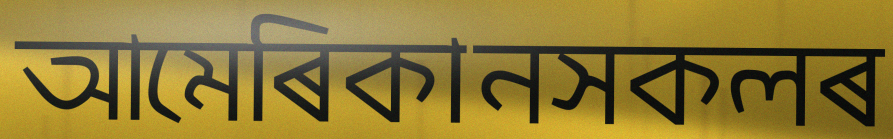
আমেৰিকানসকলৰ